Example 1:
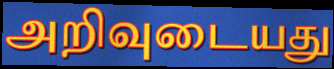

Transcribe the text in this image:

அறிவுடையது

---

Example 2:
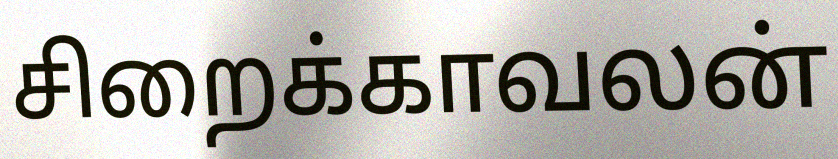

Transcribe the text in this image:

சிறைக்காவலன்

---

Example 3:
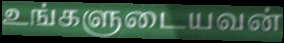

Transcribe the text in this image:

உங்களுடையவன்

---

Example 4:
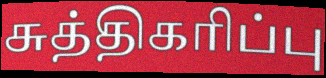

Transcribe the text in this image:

சுத்திகரிப்பு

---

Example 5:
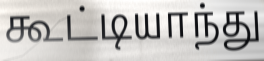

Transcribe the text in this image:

கூட்டியாந்து